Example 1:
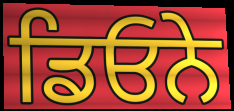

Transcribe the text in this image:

ਡਿਓਨੇ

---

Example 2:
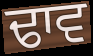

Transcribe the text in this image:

ਢਾਵ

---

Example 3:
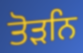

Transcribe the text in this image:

ਤੋੜਨਿ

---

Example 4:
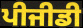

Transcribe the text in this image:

ਪੀਜੀਡੀ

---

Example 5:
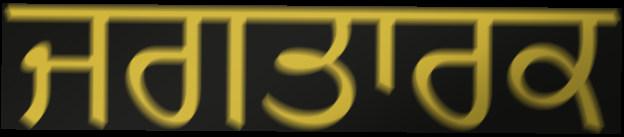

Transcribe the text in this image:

ਜਗਤਾਰਕ